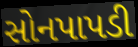
સોનપાપડી